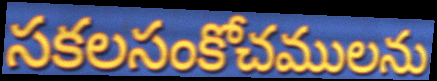
సకలసంకోచములను